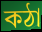
কঠা